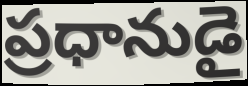
ప్రధానుడై